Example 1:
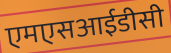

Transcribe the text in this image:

एमएसआईडीसी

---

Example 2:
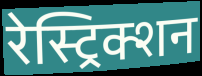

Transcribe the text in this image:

रेस्ट्रिक्शन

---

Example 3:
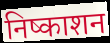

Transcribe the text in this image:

निष्काशन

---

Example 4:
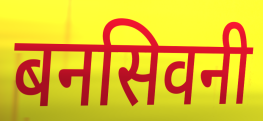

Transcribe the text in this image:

बनसिवनी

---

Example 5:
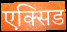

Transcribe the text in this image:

एक्सिड